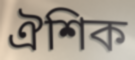
ঐশিক